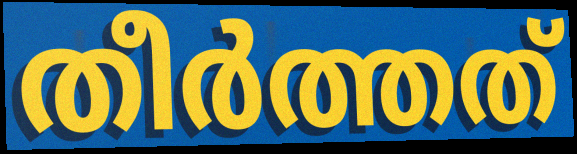
തീർത്തത്